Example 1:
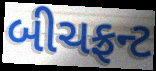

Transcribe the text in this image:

બીચફ્રન્ટ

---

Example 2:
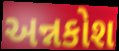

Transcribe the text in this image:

અન્નકોશ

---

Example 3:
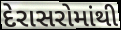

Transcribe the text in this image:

દેરાસરોમાંથી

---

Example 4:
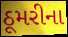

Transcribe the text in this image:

ઠૂમરીના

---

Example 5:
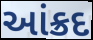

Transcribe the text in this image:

આંક્રદ